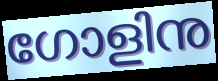
ഗോളിനു